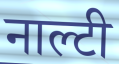
नाल्टी